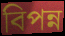
বিপন্ন